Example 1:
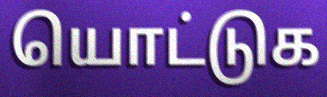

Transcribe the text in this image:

யொட்டுக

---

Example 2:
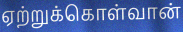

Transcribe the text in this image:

ஏற்றுக்கொள்வான்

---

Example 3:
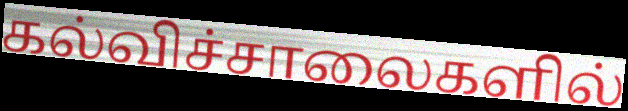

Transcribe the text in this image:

கல்விச்சாலைகளில்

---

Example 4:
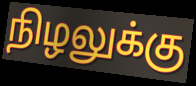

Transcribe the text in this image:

நிழலுக்கு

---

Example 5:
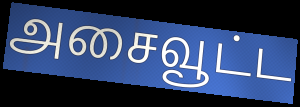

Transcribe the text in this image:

அசைவூட்ட